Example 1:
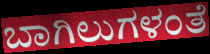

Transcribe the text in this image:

ಬಾಗಿಲುಗಳಂತೆ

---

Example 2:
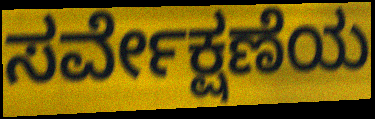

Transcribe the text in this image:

ಸರ್ವೇಕ್ಷಣೆಯ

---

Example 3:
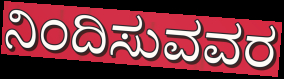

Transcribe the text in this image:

ನಿಂದಿಸುವವರ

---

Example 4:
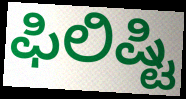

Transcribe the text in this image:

ಫಿಲಿಷ್ಟಿ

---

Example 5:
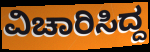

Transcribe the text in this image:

ವಿಚಾರಿಸಿದ್ದ